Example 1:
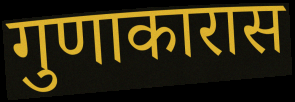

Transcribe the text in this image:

गुणाकारास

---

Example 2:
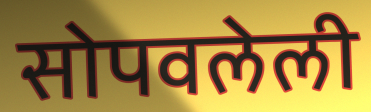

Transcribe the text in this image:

सोपवलेली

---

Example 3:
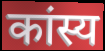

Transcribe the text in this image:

कांस्य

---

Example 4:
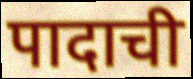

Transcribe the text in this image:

पादाची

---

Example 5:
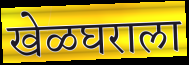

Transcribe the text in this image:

खेळघराला